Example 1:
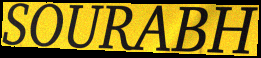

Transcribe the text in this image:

SOURABH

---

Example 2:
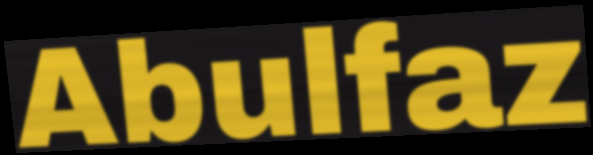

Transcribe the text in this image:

Abulfaz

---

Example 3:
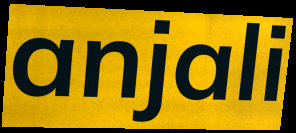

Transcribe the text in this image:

anjali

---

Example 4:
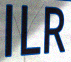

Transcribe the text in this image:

ILR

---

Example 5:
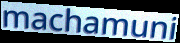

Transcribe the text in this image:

machamuni